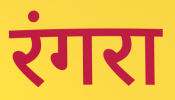
रंगरा